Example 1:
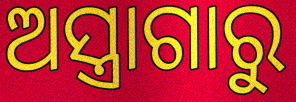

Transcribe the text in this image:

ଅସ୍ତ୍ରାଗାରୁ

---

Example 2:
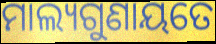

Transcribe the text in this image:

ମାଲ୍ୟଗୁଣାୟତେ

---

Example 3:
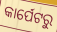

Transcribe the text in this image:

କାର୍ପେଟରୁ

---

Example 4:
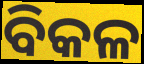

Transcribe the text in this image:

ବିକଳ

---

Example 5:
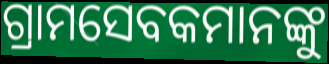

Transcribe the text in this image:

ଗ୍ରାମସେବକମାନଙ୍କୁ